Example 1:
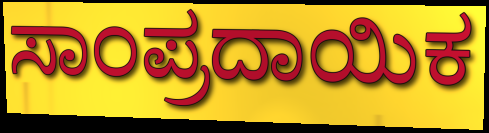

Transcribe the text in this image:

ಸಾಂಪ್ರದಾಯಿಕ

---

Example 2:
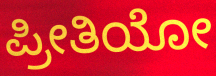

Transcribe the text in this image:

ಪ್ರೀತಿಯೋ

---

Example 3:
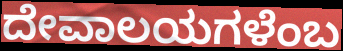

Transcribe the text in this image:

ದೇವಾಲಯಗಳೆಂಬ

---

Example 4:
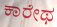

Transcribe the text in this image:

ಕಾರೇಥ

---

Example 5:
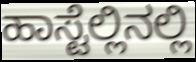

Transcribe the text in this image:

ಹಾಸ್ಟೆಲ್ಲಿನಲ್ಲಿ